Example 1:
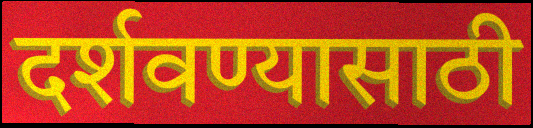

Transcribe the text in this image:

दर्शवण्यासाठी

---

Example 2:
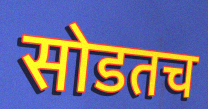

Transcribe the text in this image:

सोडतच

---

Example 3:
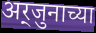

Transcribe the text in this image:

अर्जुनाच्या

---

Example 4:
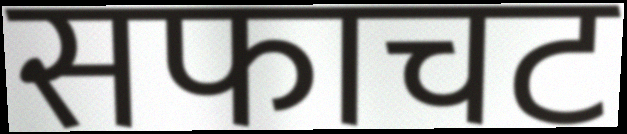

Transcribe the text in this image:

सफाचट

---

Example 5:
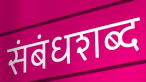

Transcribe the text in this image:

संबंधशब्द